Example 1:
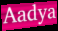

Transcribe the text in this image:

Aadya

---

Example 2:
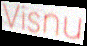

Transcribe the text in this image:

Visnu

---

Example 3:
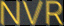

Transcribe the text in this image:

NVR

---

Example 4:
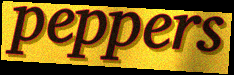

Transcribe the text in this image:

peppers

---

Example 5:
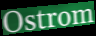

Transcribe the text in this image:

Ostrom